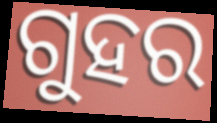
ଗୁହର